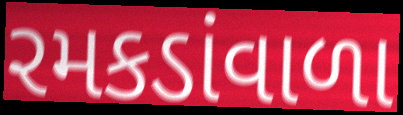
રમકડાંવાળા